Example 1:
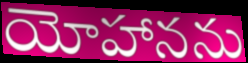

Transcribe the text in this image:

యోహానను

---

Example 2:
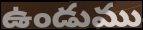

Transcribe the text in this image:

ఉండుము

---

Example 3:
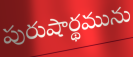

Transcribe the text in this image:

పురుషార్థమును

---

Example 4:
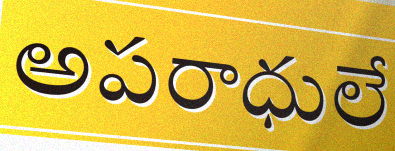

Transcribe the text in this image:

అపరాధులే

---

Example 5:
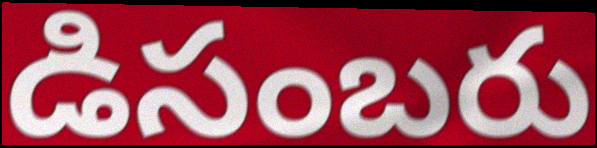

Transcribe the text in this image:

డిసంబరు